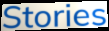
Stories